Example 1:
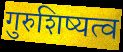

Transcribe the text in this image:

गुरुशिष्यत्व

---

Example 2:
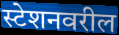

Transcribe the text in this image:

स्टेशनवरील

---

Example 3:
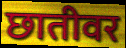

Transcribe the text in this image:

छातीवर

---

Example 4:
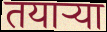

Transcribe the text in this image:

तयाऱ्या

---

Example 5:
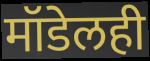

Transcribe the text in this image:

मॉडेलही